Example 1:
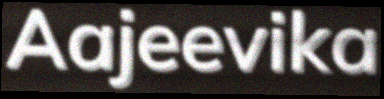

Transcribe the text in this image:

Aajeevika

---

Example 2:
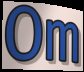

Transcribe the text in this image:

Om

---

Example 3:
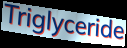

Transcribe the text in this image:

Triglyceride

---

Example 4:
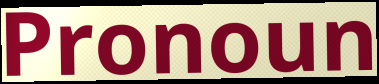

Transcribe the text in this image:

Pronoun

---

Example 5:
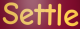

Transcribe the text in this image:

Settle